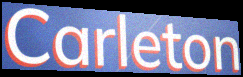
Carleton